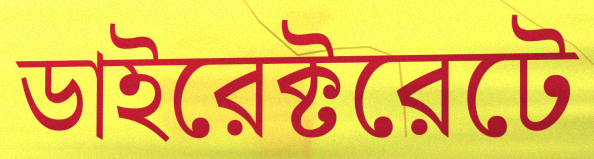
ডাইরেক্টরেটে